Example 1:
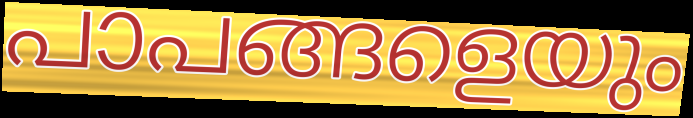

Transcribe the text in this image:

പാപങ്ങളെയും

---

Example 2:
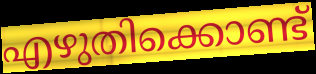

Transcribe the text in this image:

എഴുതിക്കൊണ്ട്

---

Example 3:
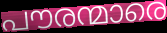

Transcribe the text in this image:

പൗരന്മാരെ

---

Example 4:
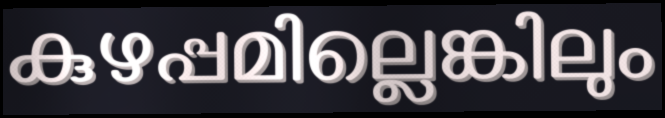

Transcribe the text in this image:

കുഴപ്പമില്ലെങ്കിലും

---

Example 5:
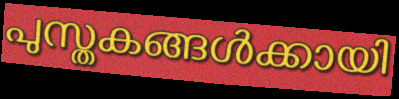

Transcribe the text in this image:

പുസ്തകങ്ങൾക്കായി